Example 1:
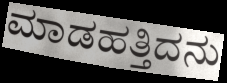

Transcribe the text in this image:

ಮಾಡಹತ್ತಿದನು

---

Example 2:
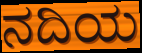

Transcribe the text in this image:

ನದಿಯ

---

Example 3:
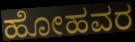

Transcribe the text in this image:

ಹೋಹವರ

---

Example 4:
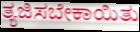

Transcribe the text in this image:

ತ್ಯಜಿಸಬೇಕಾಯಿತು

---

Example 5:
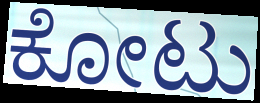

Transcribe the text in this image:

ಕೋಟು